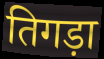
तिगड़ा